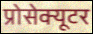
प्रोसेक्यूटर